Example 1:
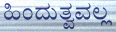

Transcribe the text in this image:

ಹಿಂದುತ್ವವಲ್ಲ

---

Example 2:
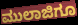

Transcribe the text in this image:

ಮುಲಾಜಿಗೂ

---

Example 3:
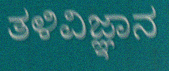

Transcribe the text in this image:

ತಳಿವಿಜ್ಞಾನ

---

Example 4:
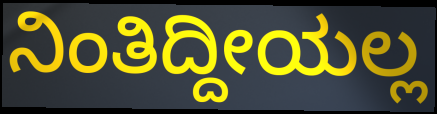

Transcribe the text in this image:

ನಿಂತಿದ್ದೀಯಲ್ಲ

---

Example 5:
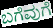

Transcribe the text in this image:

ಬಗೆವುಗೆ